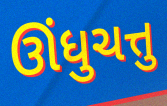
ઊંધુચત્તુ